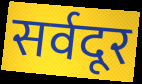
सर्वदूर